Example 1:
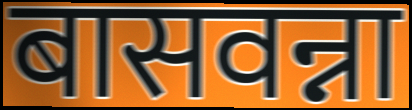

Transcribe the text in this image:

बासवन्ना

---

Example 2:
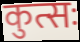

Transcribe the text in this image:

कुत्सः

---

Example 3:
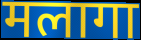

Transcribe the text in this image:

मलागा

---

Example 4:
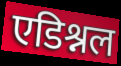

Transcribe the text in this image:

एडिश्नल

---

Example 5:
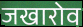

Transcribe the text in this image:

जखारोव